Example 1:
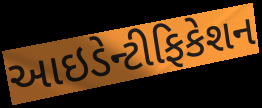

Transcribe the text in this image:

આઇડેન્ટીફિકેશન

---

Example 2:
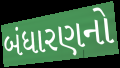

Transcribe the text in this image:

બંધારણનો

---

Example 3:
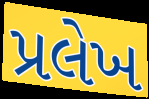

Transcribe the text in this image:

પ્રલેખ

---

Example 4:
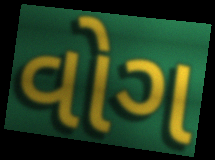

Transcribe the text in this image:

વોગ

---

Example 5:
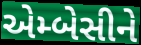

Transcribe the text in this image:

એમ્બેસીને